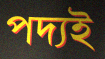
পদ্যই